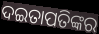
ଦଇତାପତିଙ୍କର